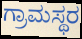
ಗ್ರಾಮಸ್ಥರ